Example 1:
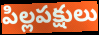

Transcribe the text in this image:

పిల్లపక్షులు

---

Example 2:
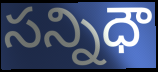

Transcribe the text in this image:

సన్నిధౌ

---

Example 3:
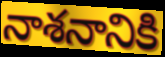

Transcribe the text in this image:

నాశనానికి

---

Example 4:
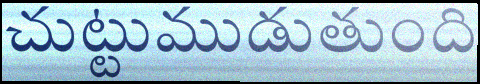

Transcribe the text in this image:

చుట్టుముడుతుంది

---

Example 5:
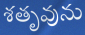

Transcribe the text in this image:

శతృవును